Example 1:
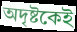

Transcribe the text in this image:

অদৃষ্টকেই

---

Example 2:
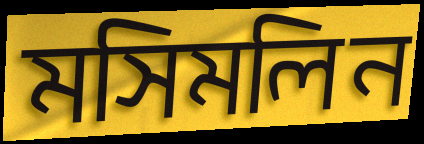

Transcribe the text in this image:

মসিমলিন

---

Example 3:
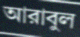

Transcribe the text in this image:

আরাবুল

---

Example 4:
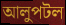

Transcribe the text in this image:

আলুপটল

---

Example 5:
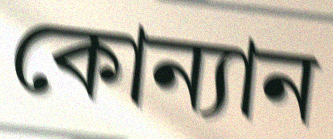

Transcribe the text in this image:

কোন্যান